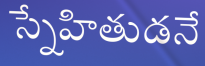
స్నేహితుడనే